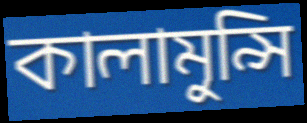
কালামুন্সি